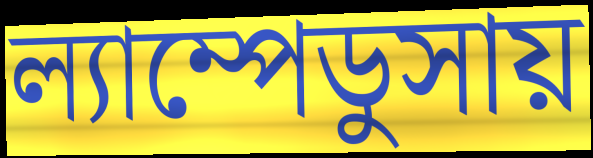
ল্যাম্পেডুসায়